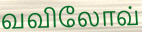
வவிலோவ்